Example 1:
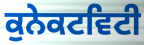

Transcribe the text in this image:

ਕੁਨੇਕਟਵਿਟੀ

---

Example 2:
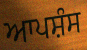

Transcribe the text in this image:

ਆਪਸ਼ੰਸ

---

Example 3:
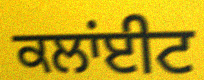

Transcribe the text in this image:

ਕਲਾਂਈਟ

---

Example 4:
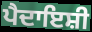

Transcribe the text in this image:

ਪੈਦਾਇਸ਼ੀ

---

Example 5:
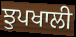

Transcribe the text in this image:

ਝੁਪਖਾਲੀ